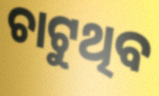
ଚାଟୁଥିବ